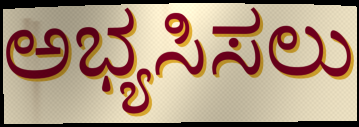
ಅಭ್ಯಸಿಸಲು